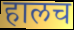
हालच